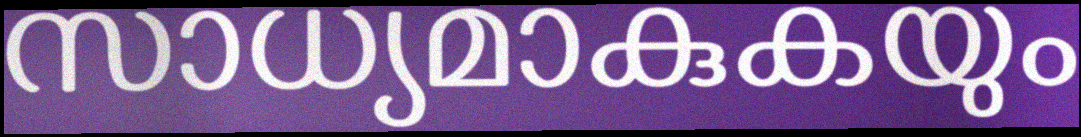
സാധ്യമാകുകയും